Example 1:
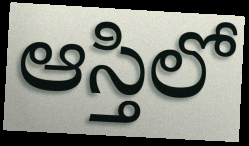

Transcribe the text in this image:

ఆస్తిలో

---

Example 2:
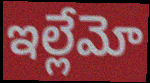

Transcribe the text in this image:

ఇల్లేమో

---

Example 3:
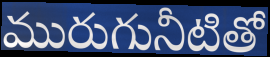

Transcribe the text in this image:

మురుగునీటితో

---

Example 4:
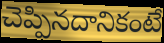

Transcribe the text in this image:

చెప్పినదానికంటే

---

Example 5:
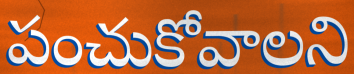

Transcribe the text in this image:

పంచుకోవాలని